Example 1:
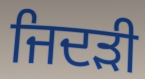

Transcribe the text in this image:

ਜਿਦੜੀ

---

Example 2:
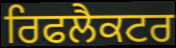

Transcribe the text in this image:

ਰਿਫਲੈਕਟਰ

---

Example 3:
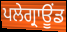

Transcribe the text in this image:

ਪਲੇਗ੍ਰਾਊਂਡ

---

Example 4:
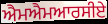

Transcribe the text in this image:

ਐਮਐਮਆਰਸੀਏ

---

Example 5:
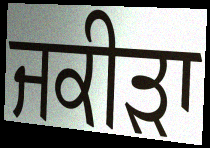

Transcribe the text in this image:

ਜਕੀੜਾ